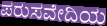
ಪರುಸವೇದಿಯ